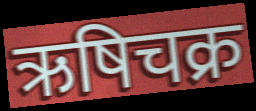
ऋषिचक्र